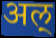
अल्